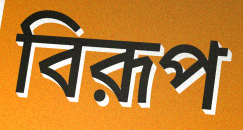
বিরূপ